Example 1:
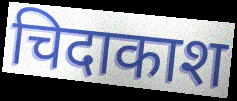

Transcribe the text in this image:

चिदाकाश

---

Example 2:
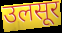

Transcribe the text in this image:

उलसूर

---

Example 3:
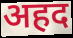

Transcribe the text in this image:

अहद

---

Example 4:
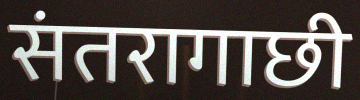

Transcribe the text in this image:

संतरागाछी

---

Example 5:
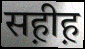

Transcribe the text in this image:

सह़ीह़